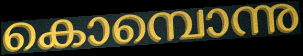
കൊമ്പൊന്നു